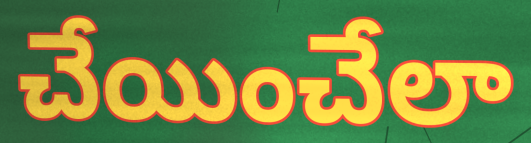
చేయించేలా